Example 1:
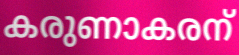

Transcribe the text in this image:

കരുണാകരന്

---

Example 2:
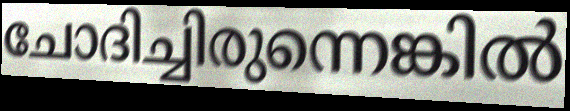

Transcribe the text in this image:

ചോദിച്ചിരുന്നെങ്കിൽ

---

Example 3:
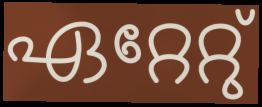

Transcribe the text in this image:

ഏറ്റേറ്റു്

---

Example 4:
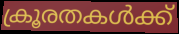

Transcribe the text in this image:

ക്രൂരതകൾക്ക്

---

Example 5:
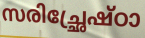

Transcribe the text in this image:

സരിച്ഛ്രേഷ്ഠാ